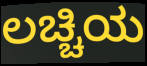
ಲಚ್ಚಿಯ